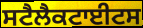
ਸਟੈਲੈਕਟਾਈਟਸ